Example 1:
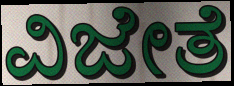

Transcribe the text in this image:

ವಿಜೇತೆ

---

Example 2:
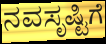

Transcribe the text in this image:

ನವಸೃಷ್ಟಿಗೆ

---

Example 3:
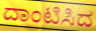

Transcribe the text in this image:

ದಾಂಟಿಸಿದ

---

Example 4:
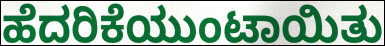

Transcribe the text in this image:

ಹೆದರಿಕೆಯುಂಟಾಯಿತು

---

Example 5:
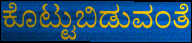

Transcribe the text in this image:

ಕೊಟ್ಟುಬಿಡುವಂತೆ